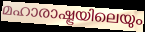
മഹാരാഷ്ട്രയിലെയും